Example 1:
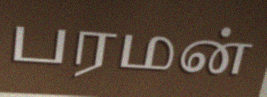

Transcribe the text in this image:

பரமன்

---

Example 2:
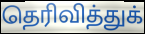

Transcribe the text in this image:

தெரிவித்துக்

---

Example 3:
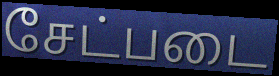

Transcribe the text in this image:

சேட்படை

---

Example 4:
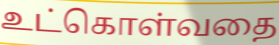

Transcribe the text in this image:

உட்கொள்வதை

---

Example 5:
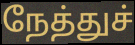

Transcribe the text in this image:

நேத்துச்